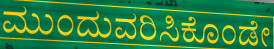
ಮುಂದುವರಿಸಿಕೊಂಡೇ